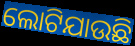
ଲୋଟିଯାଉଛି